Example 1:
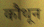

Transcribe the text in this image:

कौथून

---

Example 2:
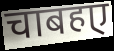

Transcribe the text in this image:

चाबहए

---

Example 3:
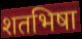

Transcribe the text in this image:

शतभिषा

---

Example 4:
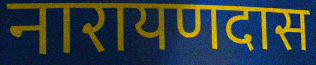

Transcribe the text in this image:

नारायणदास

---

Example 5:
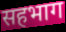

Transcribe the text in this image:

सहभाग